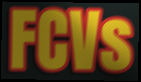
FCVs